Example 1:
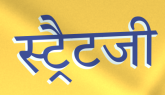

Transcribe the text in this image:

स्ट्रैटजी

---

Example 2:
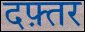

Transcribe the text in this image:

दफ़्तर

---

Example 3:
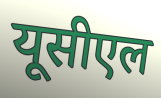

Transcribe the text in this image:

यूसीएल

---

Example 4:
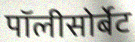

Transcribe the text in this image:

पॉलीसोर्बेट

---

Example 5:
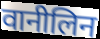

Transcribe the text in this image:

वानीलिन